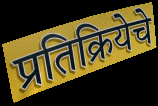
प्रतिक्रियेचे